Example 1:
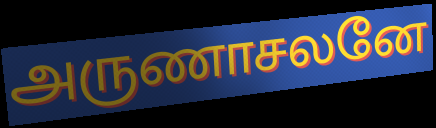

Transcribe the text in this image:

அருணாசலனே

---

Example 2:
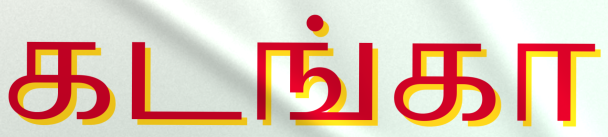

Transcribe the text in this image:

கடங்கா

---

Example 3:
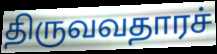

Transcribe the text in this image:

திருவவதாரச்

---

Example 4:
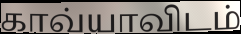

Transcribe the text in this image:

காவ்யாவிடம்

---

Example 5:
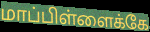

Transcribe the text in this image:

மாப்பிள்ளைக்கே